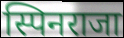
स्पिनराजा